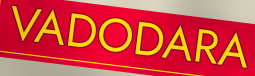
VADODARA